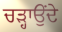
ਚੜ੍ਹਾਉਂਦੇ